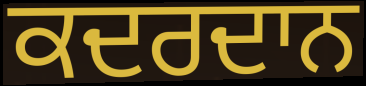
ਕਦਰਦਾਨ